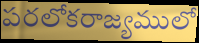
పరలోకరాజ్యములో